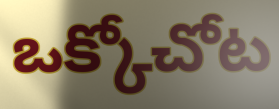
ఒక్కోచోట